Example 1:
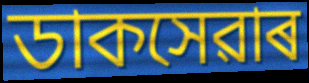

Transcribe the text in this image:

ডাকসেৱাৰ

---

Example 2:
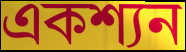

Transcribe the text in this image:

একশ্যন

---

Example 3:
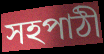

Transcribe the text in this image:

সহপাঠী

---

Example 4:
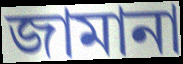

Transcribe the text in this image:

জামানা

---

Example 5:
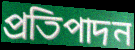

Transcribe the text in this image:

প্ৰতিপাদন